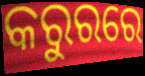
କରୁରରେ